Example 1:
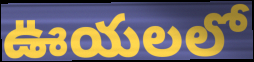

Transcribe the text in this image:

ఊయలలో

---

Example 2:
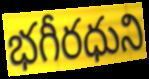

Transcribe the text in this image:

భగీరధుని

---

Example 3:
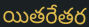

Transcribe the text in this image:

యితరేతర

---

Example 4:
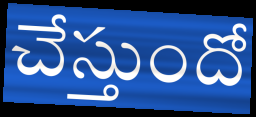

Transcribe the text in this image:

చేస్తుందో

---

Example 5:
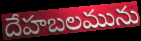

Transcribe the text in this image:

దేహబలమును